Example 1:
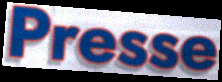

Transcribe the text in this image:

Presse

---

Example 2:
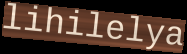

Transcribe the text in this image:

lihilelya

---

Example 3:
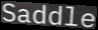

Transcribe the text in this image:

Saddle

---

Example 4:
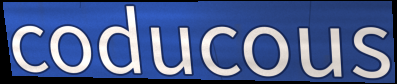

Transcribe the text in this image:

coducous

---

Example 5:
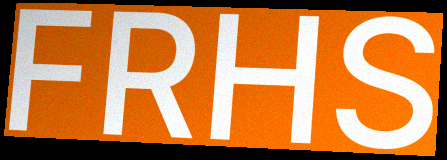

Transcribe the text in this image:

FRHS